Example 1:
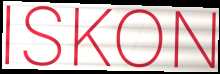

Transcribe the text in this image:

ISKON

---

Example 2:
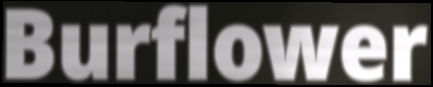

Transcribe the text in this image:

Burflower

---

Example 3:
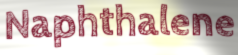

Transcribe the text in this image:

Naphthalene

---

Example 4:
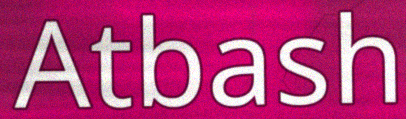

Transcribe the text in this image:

Atbash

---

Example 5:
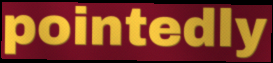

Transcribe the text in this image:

pointedly